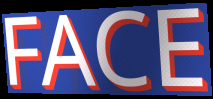
FACE